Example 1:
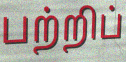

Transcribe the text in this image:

பற்றிப்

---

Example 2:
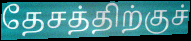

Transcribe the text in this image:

தேசத்திற்குச்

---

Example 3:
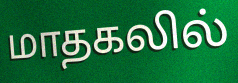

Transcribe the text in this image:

மாதகலில்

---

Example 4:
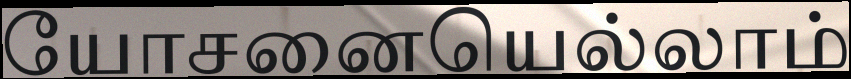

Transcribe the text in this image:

யோசனையெல்லாம்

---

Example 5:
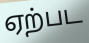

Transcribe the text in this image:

ஏற்பட